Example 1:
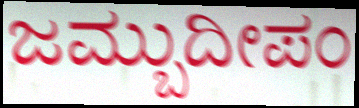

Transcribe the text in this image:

ಜಮ್ಬುದೀಪಂ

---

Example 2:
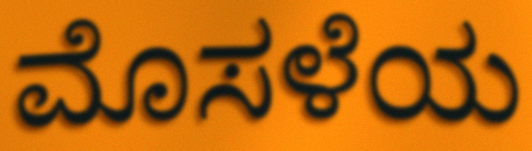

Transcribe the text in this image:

ಮೊಸಳೆಯ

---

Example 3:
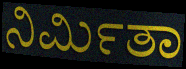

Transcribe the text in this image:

ನಿರ್ಮಿತಾ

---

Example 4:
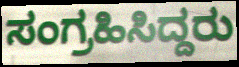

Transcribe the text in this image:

ಸಂಗ್ರಹಿಸಿದ್ದರು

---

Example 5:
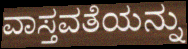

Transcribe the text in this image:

ವಾಸ್ತವತೆಯನ್ನು